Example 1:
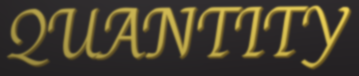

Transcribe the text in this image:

QUANTITY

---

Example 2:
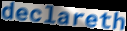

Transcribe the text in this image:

declareth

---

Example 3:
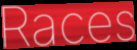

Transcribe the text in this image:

Races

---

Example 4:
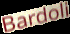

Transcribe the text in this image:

Bardoli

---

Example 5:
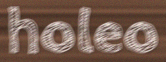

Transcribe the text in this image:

holeo